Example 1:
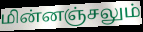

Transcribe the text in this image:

மின்னஞ்சலும்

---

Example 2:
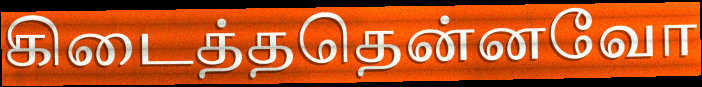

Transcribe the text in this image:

கிடைத்ததென்னவோ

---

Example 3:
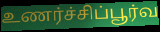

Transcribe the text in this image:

உணர்ச்சிப்பூர்வ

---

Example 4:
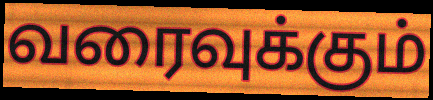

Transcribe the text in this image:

வரைவுக்கும்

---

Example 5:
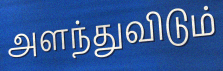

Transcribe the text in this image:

அளந்துவிடும்